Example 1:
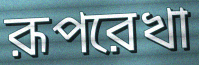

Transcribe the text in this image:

রূপরেখা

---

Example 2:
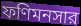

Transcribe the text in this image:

ফণিমনসার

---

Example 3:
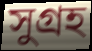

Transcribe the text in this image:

সুগ্রহ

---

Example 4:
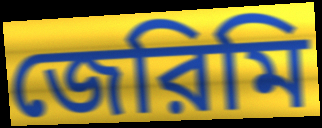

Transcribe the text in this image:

জেরিমি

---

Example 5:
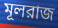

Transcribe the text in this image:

মূলরাজ